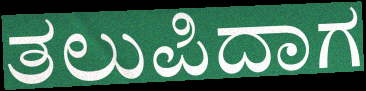
ತಲುಪಿದಾಗ